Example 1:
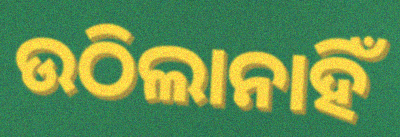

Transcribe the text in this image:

ଉଠିଲାନାହିଁ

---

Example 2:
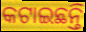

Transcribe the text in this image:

କଟାଇଛନ୍ତି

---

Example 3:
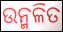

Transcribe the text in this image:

ଉନ୍ମଳିତ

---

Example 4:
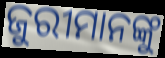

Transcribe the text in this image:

ଜୁରୀମାନଙ୍କୁ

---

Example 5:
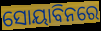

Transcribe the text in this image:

ସୋୟାବିନରେ